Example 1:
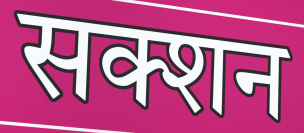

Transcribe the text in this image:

सक्शन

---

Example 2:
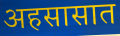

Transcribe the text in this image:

अहसासात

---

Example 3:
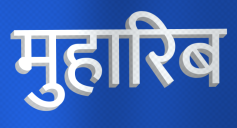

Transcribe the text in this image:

मुहारिब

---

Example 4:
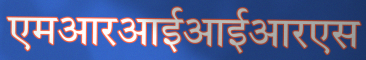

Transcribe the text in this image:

एमआरआईआईआरएस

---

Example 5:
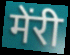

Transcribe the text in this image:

मेंरी